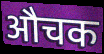
औचक